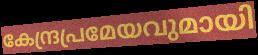
കേന്ദ്രപ്രമേയവുമായി